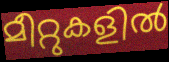
മീറ്റുകളിൽ